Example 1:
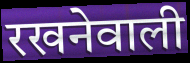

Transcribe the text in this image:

रखनेवाली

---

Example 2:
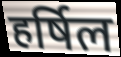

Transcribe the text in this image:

हर्षिल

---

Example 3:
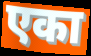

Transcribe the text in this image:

एका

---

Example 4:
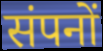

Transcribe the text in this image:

संपनों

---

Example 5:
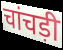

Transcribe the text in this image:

चांचड़ी